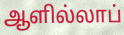
ஆளில்லாப்